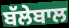
ਬੱਲੇਬਾਲ